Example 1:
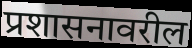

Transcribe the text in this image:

प्रशासनावरील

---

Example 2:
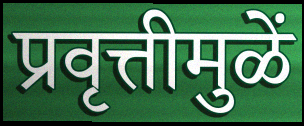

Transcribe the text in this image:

प्रवृत्तीमुळें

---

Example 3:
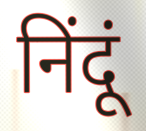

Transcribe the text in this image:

निंदूं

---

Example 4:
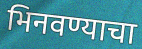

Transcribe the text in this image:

भिनवण्याचा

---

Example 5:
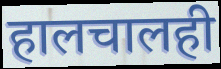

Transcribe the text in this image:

हालचालही